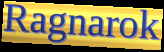
Ragnarok